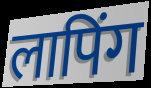
लापिंग